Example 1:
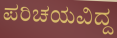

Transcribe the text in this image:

ಪರಿಚಯವಿದ್ದ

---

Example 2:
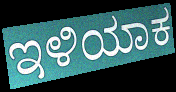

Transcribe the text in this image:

ಇಳಿಯಾಕ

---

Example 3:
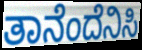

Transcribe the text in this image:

ತಾನೆಂದೆನಿಸಿ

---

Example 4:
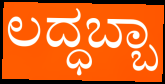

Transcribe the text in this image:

ಲದ್ಧಬ್ಬಾ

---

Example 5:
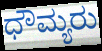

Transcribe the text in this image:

ಧೌಮ್ಯರು